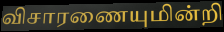
விசாரணையுமின்றி